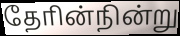
தேரின்நின்று